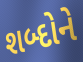
શબ્દોને